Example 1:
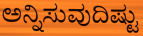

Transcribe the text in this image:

ಅನ್ನಿಸುವುದಿಷ್ಟು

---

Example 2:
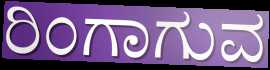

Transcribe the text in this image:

ರಿಂಗಾಗುವ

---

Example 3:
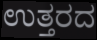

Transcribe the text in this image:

ಉತ್ತರದ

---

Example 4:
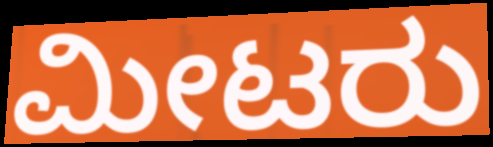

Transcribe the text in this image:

ಮೀಟರು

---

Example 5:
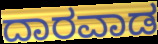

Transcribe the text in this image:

ದಾರವಾಡ